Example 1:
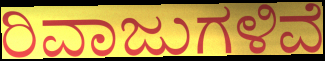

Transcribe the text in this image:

ರಿವಾಜುಗಳಿವೆ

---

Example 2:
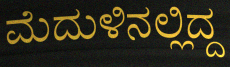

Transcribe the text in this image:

ಮೆದುಳಿನಲ್ಲಿದ್ದ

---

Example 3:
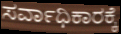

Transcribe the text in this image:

ಸರ್ವಾಧಿಕಾರಕ್ಕೆ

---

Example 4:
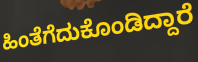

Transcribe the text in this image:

ಹಿಂತೆಗೆದುಕೊಂಡಿದ್ದಾರೆ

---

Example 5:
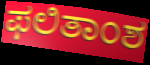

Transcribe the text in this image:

ಫಲಿತಾಂಶ